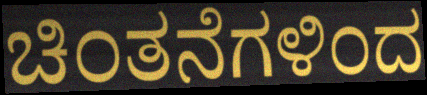
ಚಿಂತನೆಗಳಿಂದ